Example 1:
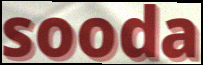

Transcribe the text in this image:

sooda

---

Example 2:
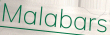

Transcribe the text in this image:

Malabars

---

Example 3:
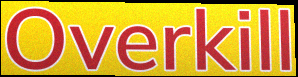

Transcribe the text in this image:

Overkill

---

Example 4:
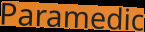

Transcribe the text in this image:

Paramedic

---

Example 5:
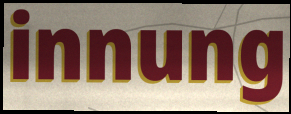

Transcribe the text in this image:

innung